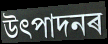
উৎপাদনৰ